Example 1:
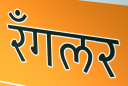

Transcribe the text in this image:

रॅंगलर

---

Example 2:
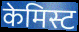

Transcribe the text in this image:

केमिस्ट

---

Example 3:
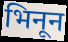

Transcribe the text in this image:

भिनून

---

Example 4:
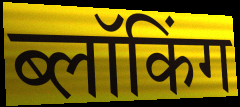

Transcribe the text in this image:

ब्लॉकिंग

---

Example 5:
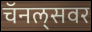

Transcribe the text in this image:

चॅनल्सवर